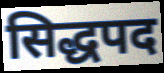
सिद्धपद